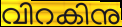
വിറകിനു